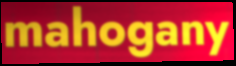
mahogany